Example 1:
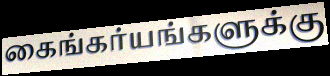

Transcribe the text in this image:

கைங்கர்யங்களுக்கு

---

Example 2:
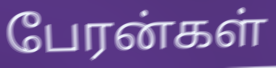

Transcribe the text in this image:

பேரன்கள்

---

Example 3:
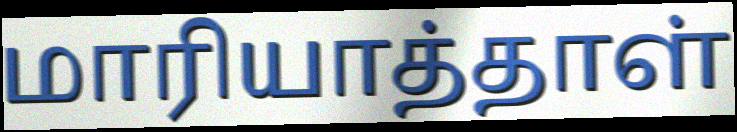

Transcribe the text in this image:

மாரியாத்தாள்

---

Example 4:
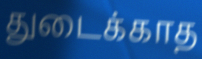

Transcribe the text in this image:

துடைக்காத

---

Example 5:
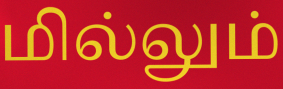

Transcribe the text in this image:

மில்லும்